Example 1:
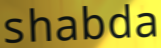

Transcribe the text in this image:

shabda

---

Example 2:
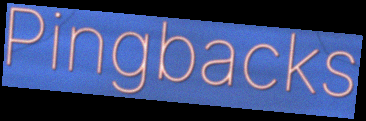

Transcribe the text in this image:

Pingbacks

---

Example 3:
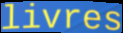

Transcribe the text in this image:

livres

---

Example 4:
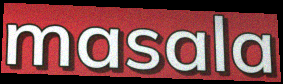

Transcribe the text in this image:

masala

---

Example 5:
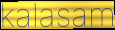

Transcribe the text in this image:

kalasam